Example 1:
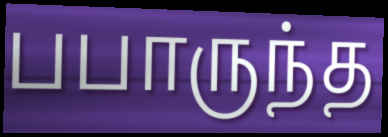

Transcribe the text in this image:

பபாருந்த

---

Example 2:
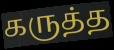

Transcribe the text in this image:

கருத்த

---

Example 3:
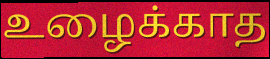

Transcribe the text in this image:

உழைக்காத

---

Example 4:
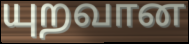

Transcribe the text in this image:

யுறவான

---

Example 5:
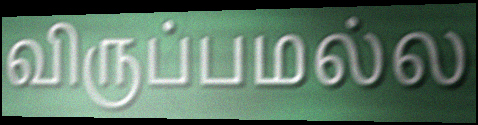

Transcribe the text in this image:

விருப்பமல்ல